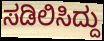
ಸಡಿಲಿಸಿದ್ದು